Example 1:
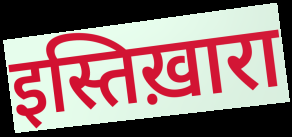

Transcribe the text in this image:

इस्तिख़ारा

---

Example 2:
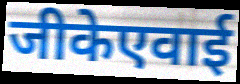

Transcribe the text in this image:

जीकेएवाई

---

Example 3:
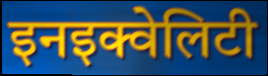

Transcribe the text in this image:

इनइक्वेलिटी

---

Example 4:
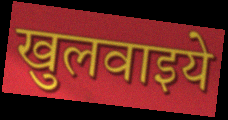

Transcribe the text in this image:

खुलवाइये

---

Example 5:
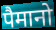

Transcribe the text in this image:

पैमानो